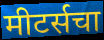
मीटर्सचा